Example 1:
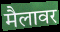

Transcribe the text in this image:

मैलावर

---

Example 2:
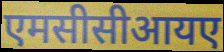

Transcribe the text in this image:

एमसीसीआयए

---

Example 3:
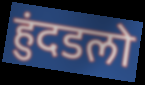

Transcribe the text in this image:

हुंदडलो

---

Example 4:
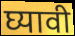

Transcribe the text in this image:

घ्यावी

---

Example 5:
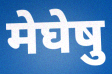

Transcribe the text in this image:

मेघेषु